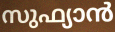
സുഫ്യാൻ